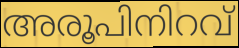
അരൂപിനിറവ്